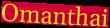
Omanthai